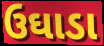
ઉઘાડા